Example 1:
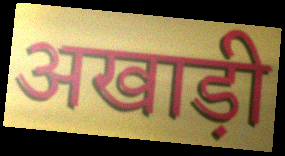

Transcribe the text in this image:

अखाड़ी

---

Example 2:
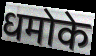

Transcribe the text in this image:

धमोके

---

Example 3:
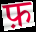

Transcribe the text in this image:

फ़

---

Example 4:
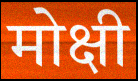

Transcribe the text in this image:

मोक्षी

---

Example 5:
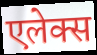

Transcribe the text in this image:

एलेक्स